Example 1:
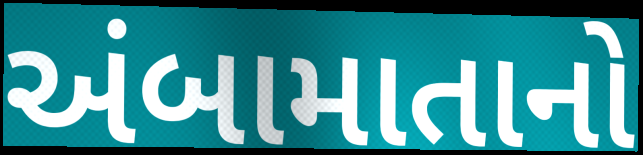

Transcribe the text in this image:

અંબામાતાનો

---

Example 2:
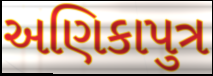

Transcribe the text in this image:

અણિકાપુત્ર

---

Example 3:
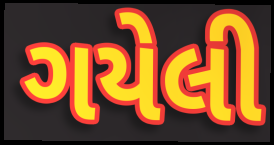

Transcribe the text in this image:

ગયેલી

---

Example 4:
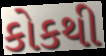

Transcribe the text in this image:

કોકથી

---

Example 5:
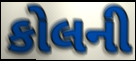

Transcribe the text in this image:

કોલની